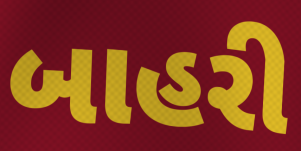
બાહરી